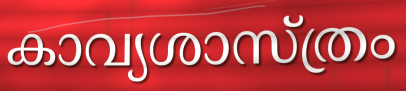
കാവ്യശാസ്ത്രം